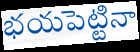
భయపెట్టినా